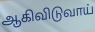
ஆகிவிடுவாய்